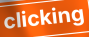
clicking